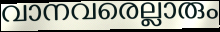
വാനവരെല്ലാരും